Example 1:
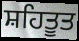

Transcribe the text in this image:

ਸ਼ਹਿਤੂਤ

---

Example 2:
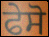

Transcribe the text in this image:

ਫੇਸੋ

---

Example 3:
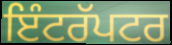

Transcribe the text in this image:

ਇੰਟਰੱਪਟਰ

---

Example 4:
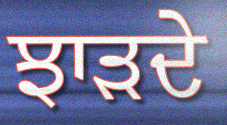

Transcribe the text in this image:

ਝਾੜਦੇ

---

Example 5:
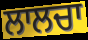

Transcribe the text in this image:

ਲਾਲਚਾ